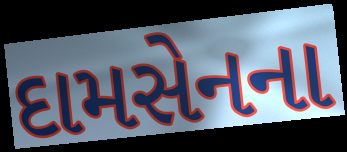
દામસેનના